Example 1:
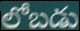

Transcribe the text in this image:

లోబడు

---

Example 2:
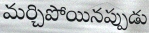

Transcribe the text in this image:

మర్చిపోయినప్పుడు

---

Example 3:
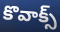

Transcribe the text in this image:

కొవాక్స్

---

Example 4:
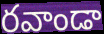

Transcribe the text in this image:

రవాండా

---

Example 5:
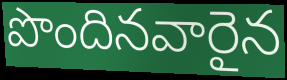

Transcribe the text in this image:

పొందినవారైన